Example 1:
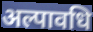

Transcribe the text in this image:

अल्पावधि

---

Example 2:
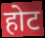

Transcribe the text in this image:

होट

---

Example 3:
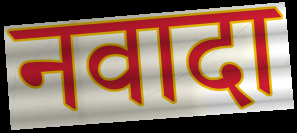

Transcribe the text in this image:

नवादा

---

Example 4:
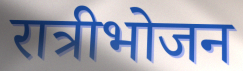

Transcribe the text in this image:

रात्रीभोजन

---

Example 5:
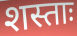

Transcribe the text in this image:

शस्ताः